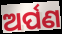
ଅର୍ପଣ